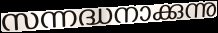
സന്നദ്ധനാക്കുന്നു